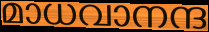
മാധവാനന്ദ